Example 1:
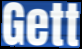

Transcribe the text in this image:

Gett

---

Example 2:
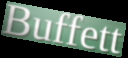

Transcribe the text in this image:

Buffett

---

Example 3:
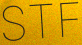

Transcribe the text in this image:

STF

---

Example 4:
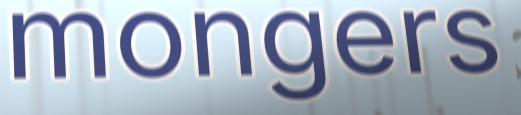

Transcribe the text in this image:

mongers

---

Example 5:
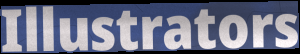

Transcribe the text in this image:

Illustrators